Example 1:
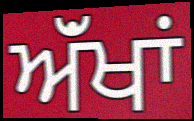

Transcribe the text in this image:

ਅੱਂਖਾਂ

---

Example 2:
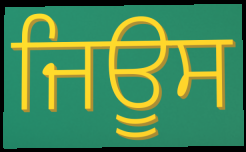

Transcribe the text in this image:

ਜਿਊਸ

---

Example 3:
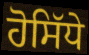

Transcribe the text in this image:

ਹੋਸਿੱਧੇ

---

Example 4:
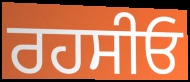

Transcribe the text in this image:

ਰਹਸੀਓ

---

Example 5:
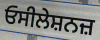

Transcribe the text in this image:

ਓਸੀਲੇਸ਼ਨਜ਼